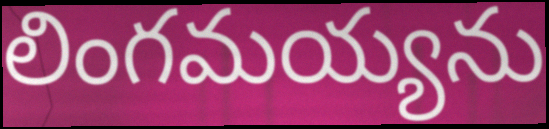
లింగమయ్యను